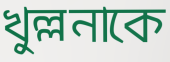
খুল্লনাকে